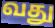
வது